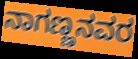
ನಾಗಣ್ಣನವರ